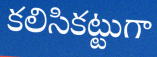
కలిసికట్టుగా